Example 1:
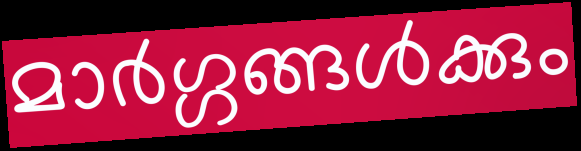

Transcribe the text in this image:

മാർഗ്ഗങ്ങൾക്കും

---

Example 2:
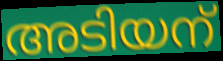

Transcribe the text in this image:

അടിയന്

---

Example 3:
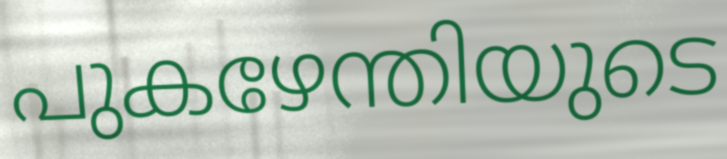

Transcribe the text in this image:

പുകഴേന്തിയുടെ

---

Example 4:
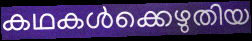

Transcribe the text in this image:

കഥകൾക്കെഴുതിയ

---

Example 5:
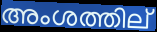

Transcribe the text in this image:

അംശത്തില്